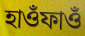
হাওঁফাওঁ